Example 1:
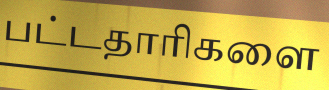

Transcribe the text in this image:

பட்டதாரிகளை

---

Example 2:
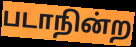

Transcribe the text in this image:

படாநின்ற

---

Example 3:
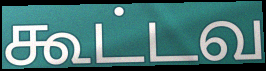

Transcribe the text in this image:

கூட்டவ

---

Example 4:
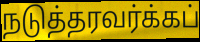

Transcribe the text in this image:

நடுத்தரவர்க்கப்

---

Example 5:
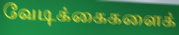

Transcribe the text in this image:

வேடிக்கைகளைக்